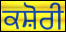
ਕਸ਼ੋਰੀ